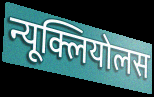
न्यूक्लियोलस